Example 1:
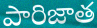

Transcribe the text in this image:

పారిజాత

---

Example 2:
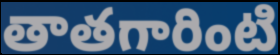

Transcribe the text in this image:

తాతగారింటి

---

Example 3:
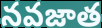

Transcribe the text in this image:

నవజాత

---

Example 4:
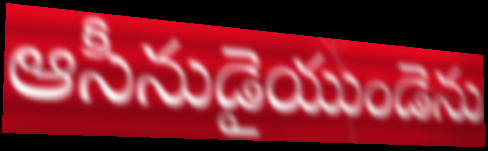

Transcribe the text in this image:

ఆసీనుడైయుండెను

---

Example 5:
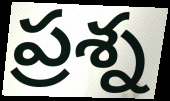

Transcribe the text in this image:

ప్రశ్న